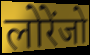
लोरेंजो